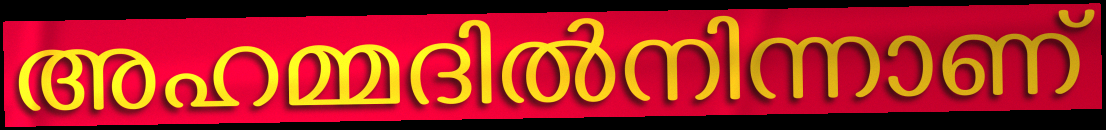
അഹമ്മദിൽനിന്നാണ്